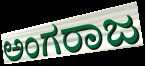
ಅಂಗರಾಜ